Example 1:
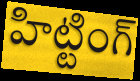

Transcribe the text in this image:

హిట్టింగ్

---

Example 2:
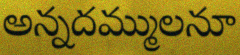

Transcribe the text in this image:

అన్నదమ్ములనూ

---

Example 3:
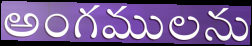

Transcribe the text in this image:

అంగములను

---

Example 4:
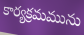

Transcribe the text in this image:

కార్యక్రమమును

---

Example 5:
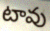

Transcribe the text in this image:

టావు